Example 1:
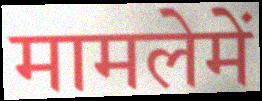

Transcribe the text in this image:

मामलेमें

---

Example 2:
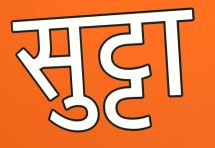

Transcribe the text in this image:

सुट्टा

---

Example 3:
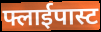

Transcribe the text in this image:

फ्लाईपास्ट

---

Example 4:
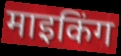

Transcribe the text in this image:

माइकिंग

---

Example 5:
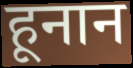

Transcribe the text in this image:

हूनान